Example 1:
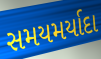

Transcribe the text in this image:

સમયમર્યાદા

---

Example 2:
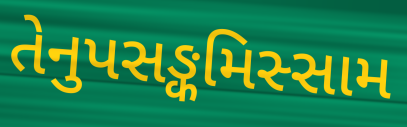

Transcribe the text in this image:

તેનુપસઙ્કમિસ્સામ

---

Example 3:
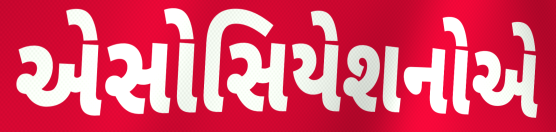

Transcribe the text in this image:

એસોસિયેશનોએ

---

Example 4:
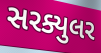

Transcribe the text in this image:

સરક્યુલર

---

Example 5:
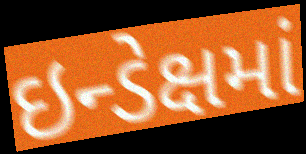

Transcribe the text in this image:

ઇન્ડેક્ષમાં